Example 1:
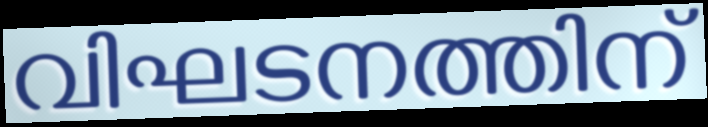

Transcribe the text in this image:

വിഘടനത്തിന്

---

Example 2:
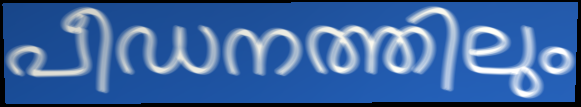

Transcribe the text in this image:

പീഡനത്തിലും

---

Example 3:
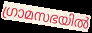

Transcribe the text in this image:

ഗ്രാമസഭയിൽ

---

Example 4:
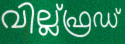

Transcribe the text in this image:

വില്ല്ഫ്രഡ്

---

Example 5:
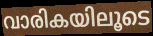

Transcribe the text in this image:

വാരികയിലൂടെ